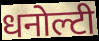
धनोल्‍टी